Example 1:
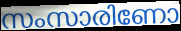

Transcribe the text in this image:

സംസാരിണോ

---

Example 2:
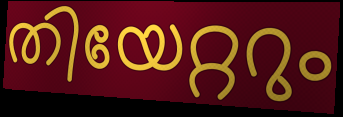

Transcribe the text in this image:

തിയേറ്ററും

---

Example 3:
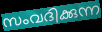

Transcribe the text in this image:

സംവദിക്കുന്ന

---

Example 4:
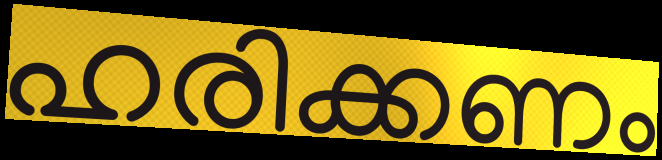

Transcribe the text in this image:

ഹരിക്കണം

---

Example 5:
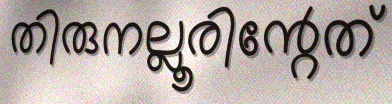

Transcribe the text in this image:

തിരുനല്ലൂരിന്റേത്